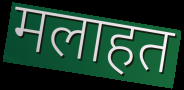
मलाहत